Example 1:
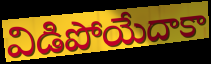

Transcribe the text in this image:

విడిపోయేదాకా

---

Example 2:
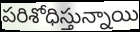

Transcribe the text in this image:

పరిశోధిస్తున్నాయి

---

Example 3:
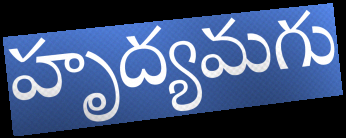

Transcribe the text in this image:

హృద్యమగు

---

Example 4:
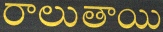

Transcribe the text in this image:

రాలుతాయి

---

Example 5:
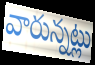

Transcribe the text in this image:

వారున్నట్లు